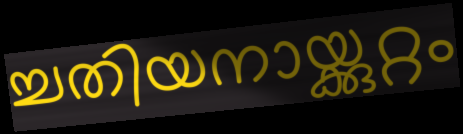
ച്ചതിയനായ്ക്കുറ്റം